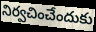
నిర్వచించేందుకు